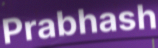
Prabhash